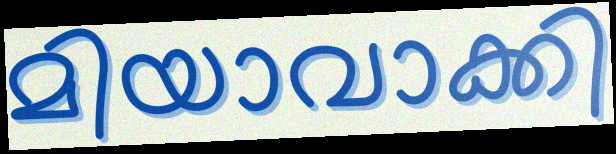
മിയാവാക്കി